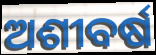
ଅଶୀବର୍ଷ